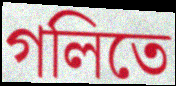
গলিতে